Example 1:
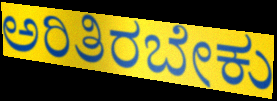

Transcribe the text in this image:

ಅರಿತಿರಬೇಕು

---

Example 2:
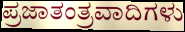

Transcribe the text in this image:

ಪ್ರಜಾತಂತ್ರವಾದಿಗಳು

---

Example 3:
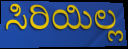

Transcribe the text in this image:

ಸಿರಿಯಿಲ್ಲ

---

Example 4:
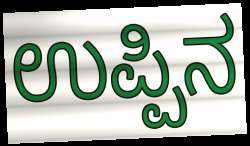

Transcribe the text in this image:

ಉಪ್ಪಿನ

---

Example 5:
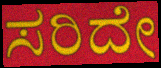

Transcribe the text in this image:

ಸರಿದೇ